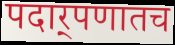
पदार्पणातच